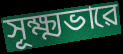
সূক্ষ্মভাৱে